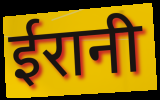
ईरानी